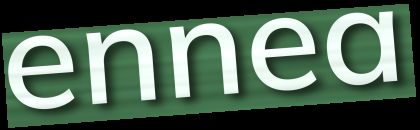
ennea